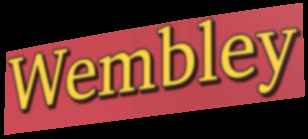
Wembley